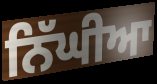
ਨਿੱਘੀਆ